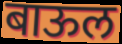
बाऊल